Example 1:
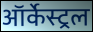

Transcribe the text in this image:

ऑर्केस्ट्रल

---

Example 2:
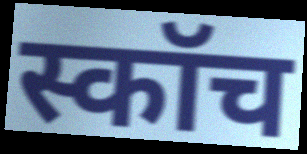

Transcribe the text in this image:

स्कॉच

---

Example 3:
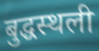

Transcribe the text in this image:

बुद्धस्थली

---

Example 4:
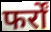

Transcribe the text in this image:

फर्रों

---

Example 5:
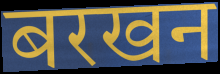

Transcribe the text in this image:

बरखन